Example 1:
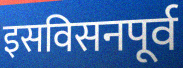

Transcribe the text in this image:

इसविसनपूर्व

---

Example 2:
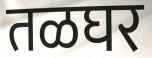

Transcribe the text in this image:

तळघर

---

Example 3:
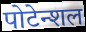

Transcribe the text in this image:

पोटेन्शल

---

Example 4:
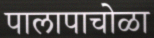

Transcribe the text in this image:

पालापाचोळा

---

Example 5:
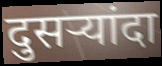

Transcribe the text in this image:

दुसऱ्यांदा